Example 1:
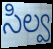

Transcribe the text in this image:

సిల్వ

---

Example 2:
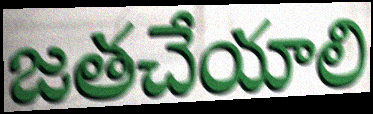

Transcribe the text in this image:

జతచేయాలి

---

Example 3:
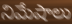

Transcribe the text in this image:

నిమేషాలు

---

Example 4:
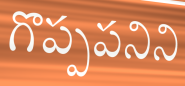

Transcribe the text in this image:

గొప్పపనిని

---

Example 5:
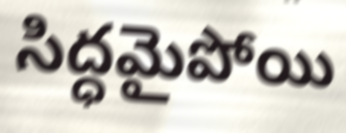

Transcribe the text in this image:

సిద్ధమైపోయి